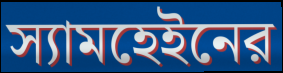
স্যামহেইনের